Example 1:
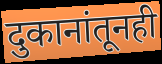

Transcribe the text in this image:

दुकानांतूनही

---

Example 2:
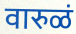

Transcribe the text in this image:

वारुळं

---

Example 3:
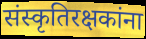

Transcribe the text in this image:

संस्कृतिरक्षकांना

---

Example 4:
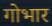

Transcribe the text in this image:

गोभार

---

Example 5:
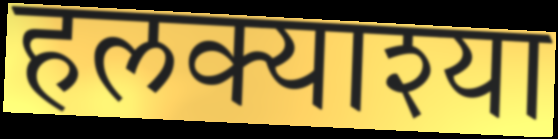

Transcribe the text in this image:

हलक्याश्या